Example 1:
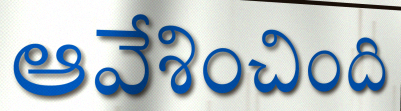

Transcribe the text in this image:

ఆవేశించింది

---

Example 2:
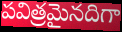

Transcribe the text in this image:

పవిత్రమైనదిగా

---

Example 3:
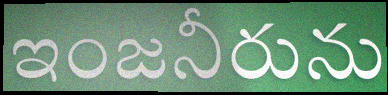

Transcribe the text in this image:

ఇంజనీరును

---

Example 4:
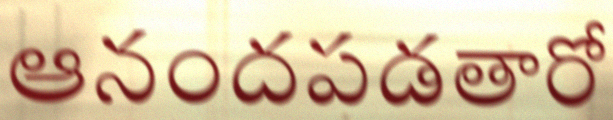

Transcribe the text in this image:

ఆనందపడతారో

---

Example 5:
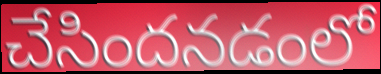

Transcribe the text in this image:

చేసిందనడంలో